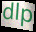
dlp